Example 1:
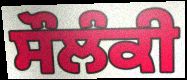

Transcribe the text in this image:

ਸੌਲੰਕੀ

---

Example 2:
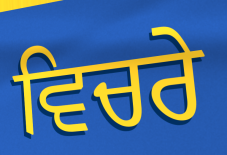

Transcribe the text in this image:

ਵਿਚਰੇ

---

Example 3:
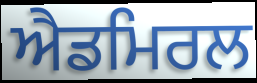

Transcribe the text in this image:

ਐਡਮਿਰਲ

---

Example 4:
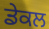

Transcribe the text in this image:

ਡੇਕਲ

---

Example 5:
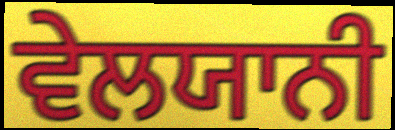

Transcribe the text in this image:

ਵੇਲਯਾਨੀ